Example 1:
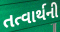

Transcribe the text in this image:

તત્વાર્થની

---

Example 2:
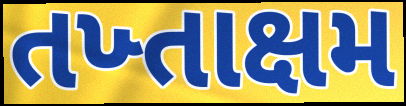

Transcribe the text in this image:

તખ્તાક્ષમ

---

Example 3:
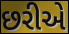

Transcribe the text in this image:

છરીએ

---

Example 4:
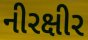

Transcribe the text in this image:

નીરક્ષીર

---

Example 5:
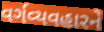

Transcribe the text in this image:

વર્ગવ્યવહારને